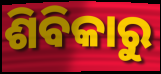
ଶିବିକାରୁ